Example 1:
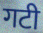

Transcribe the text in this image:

गटी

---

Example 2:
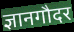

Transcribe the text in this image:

ज्ञानगौदर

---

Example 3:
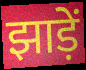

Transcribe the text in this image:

झाड़ें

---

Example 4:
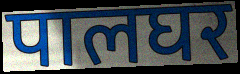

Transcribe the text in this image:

पालघर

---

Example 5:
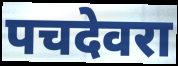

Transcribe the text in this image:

पचदेवरा